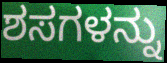
ಶಸಗಳನ್ನು